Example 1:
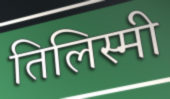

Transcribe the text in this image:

तिलिस्मी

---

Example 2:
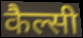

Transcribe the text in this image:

कैल्सी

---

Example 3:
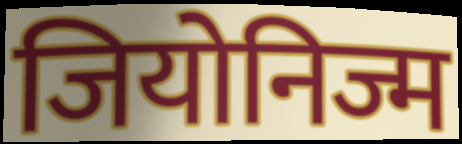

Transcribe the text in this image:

जियोनिज्म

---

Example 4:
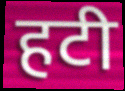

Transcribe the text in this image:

हटी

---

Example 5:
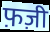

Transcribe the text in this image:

फ़ज़ी